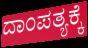
ದಾಂಪತ್ಯಕ್ಕೆ